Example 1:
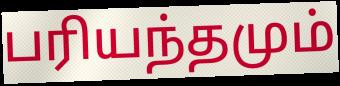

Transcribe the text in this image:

பரியந்தமும்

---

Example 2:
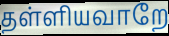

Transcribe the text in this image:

தள்ளியவாறே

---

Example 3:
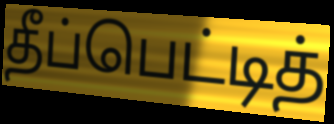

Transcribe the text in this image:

தீப்பெட்டித்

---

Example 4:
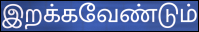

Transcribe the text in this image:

இறக்கவேண்டும்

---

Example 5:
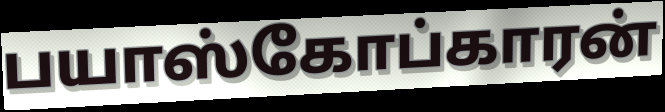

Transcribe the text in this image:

பயாஸ்கோப்காரன்